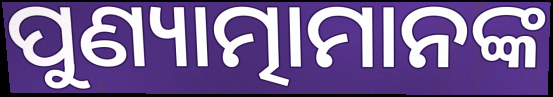
ପୁଣ୍ୟାତ୍ମାମାନଙ୍କ